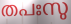
തപഃസു